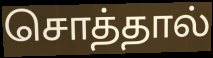
சொத்தால்